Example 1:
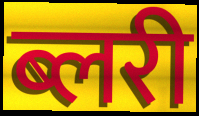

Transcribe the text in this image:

ब्लरी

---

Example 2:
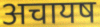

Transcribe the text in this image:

अचायष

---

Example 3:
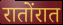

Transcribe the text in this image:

रातोंरात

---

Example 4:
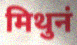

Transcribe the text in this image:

मिथुनं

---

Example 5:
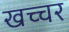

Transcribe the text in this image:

खच्‍चर